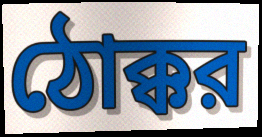
ঠোক্কর